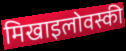
मिखाइलोवस्की